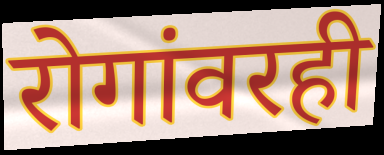
रोगांवरही